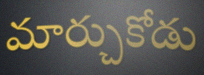
మార్చుకోడు